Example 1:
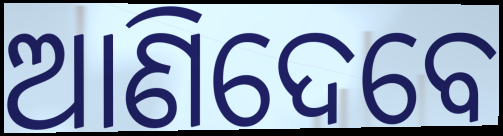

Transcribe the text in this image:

ଆଣିଦେବେ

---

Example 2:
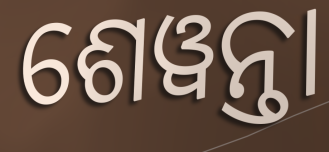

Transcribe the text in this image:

ଶେୱନ୍ତା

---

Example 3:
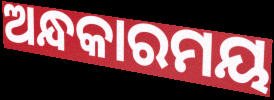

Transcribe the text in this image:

ଅନ୍ଧକାରମୟ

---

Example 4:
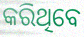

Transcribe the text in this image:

କରିଥିବେ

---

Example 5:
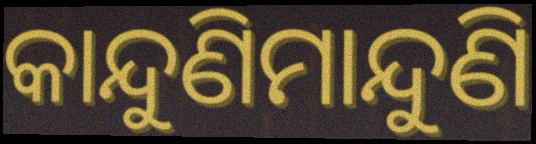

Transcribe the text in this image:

କାନ୍ଦୁଣିମାନ୍ଦୁଣି